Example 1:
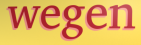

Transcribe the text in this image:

wegen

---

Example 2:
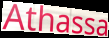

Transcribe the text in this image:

Athassa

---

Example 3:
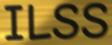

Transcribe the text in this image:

ILSS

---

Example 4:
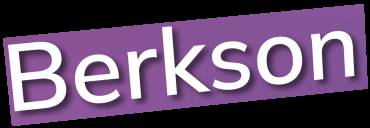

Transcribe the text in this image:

Berkson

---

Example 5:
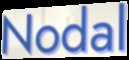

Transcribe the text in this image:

Nodal